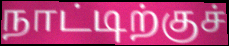
நாட்டிற்குச்